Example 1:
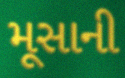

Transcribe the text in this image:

મૂસાની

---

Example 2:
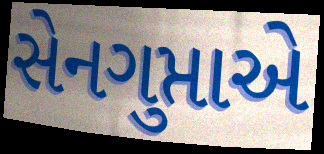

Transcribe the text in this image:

સેનગુપ્તાએ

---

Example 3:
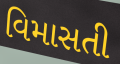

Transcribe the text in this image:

વિમાસતી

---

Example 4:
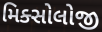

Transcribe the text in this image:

મિક્સોલોજી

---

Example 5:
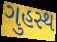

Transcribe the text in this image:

ગુહસ્થ